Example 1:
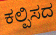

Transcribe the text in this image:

ಕಲ್ಪಿಸದ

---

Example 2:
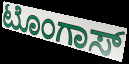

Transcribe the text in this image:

ಟೊಂಗಾಸ್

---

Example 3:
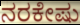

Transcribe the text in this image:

ನರಕೇಷು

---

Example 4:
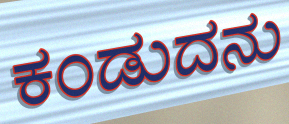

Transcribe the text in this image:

ಕಂಡುದನು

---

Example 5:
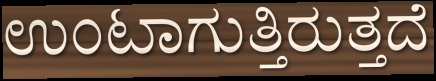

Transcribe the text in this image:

ಉಂಟಾಗುತ್ತಿರುತ್ತದೆ